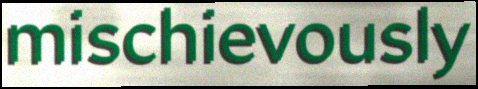
mischievously